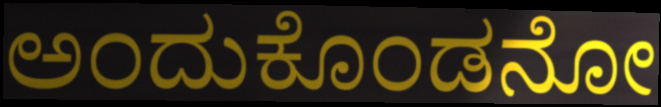
ಅಂದುಕೊಂಡನೋ